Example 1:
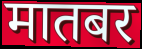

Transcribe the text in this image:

मातबर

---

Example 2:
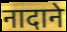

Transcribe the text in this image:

नादाने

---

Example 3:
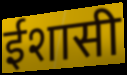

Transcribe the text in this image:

ईशासी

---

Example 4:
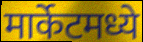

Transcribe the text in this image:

मार्केटमध्ये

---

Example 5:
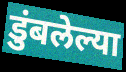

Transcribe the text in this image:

डुंबलेल्या